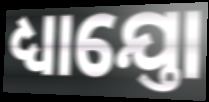
ଧ୍ୟାଯ୍ତୋ